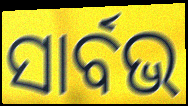
ସାର୍ବଭ